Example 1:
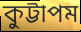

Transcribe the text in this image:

কুট্টাপম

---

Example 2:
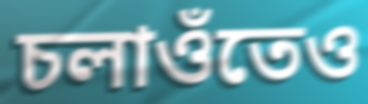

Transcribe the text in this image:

চলাওঁতেও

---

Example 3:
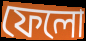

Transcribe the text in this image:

ফেলো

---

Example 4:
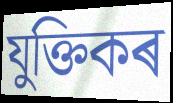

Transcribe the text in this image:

যুক্তিকৰ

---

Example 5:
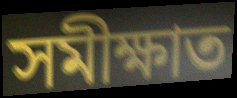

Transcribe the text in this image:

সমীক্ষাত